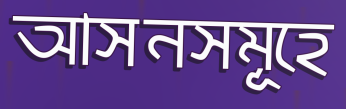
আসনসমূহে